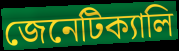
জেনেটিক্যালি